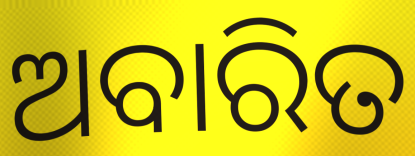
ଅବାରିତ